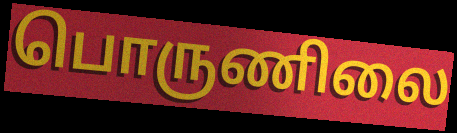
பொருணிலை